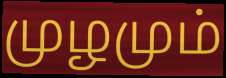
முழமும்